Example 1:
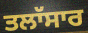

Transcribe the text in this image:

ਤਲਾੱਸਾਰ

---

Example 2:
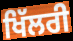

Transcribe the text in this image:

ਖਿੱਲਰੀ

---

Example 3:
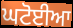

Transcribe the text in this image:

ਘਟੋਈਆ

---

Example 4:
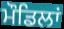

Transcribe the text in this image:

ਮੌਡਿਲਾਂ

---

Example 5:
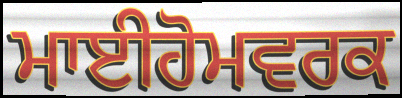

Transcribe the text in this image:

ਮਾਈਹੋਮਵਰਕ